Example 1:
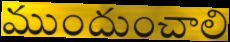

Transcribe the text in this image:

ముందుంచాలి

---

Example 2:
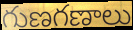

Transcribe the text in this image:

గుణగణాలు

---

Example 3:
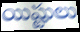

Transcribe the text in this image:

యిష్టులు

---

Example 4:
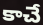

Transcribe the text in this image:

కాచే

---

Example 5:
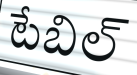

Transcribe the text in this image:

టేబిల్